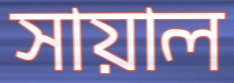
সায়াল